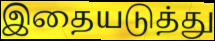
இதையடுத்து